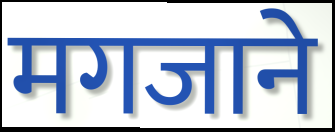
मगजाने